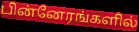
பின்னேரங்களில்